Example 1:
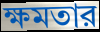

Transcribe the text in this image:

ক্ষমতার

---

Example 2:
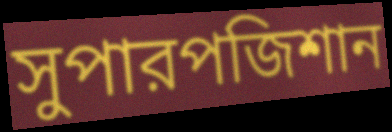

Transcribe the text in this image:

সুপারপজিশান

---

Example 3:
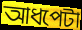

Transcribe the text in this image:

আধপেটা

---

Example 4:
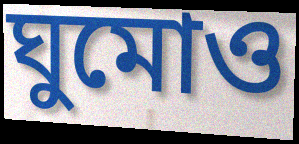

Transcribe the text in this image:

ঘুমোও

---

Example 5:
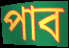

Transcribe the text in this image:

পাব